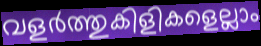
വളർത്തുകിളികളെല്ലാം